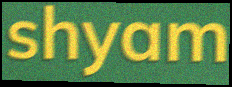
shyam